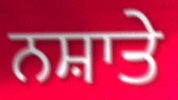
ਨਸ਼ਾਤੇ